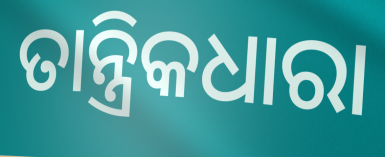
ତାନ୍ତ୍ରିକଧାରା